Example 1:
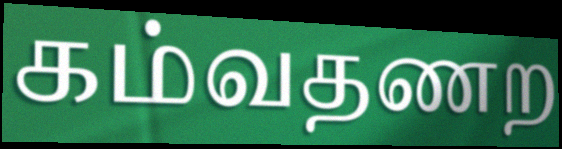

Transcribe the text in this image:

கம்வதணற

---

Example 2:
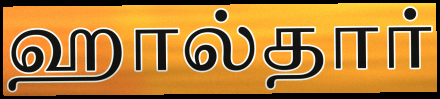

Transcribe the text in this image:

ஹால்தார்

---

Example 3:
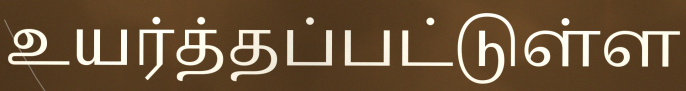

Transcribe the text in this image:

உயர்த்தப்பட்டுள்ள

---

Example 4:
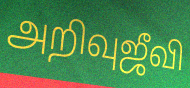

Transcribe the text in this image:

அறிவுஜீவி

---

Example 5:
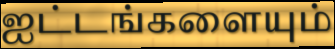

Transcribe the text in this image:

ஐட்டங்களையும்